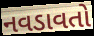
નવડાવતો